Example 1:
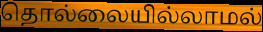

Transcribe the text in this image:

தொல்லையில்லாமல்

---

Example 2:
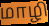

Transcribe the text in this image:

மாழி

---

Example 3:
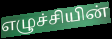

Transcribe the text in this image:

எழுச்சியின்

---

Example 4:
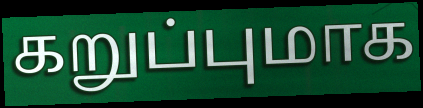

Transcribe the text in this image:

கறுப்புமாக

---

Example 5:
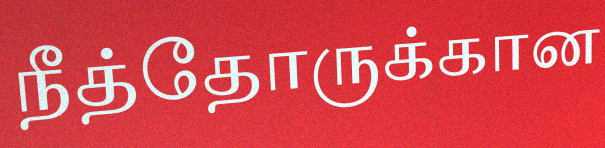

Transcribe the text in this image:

நீத்தோருக்கான